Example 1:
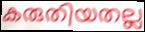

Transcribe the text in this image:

കരുതിയതല്ല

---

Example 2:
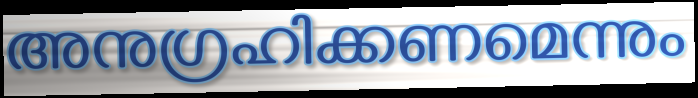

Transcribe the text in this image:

അനുഗ്രഹിക്കണമെന്നും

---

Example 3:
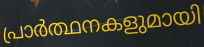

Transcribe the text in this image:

പ്രാർത്ഥനകളുമായി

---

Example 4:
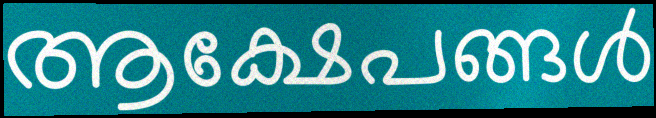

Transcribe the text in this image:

ആക്ഷേപങ്ങൾ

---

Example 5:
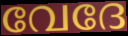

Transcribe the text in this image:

വേദേ